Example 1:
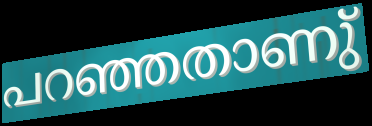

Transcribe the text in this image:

പറഞ്ഞതാണു്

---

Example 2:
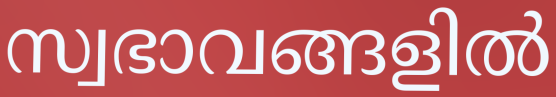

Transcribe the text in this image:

സ്വഭാവങ്ങളിൽ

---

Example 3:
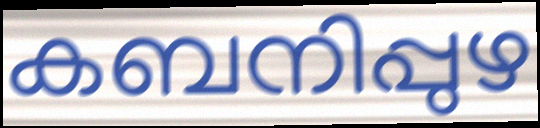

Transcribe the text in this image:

കബനിപ്പുഴ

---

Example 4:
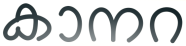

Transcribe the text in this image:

കാനറ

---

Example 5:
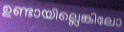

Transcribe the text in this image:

ഉണ്ടായില്ലെങ്കിലോ